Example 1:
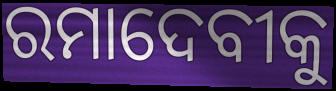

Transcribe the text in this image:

ରମାଦେବୀକୁ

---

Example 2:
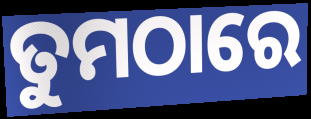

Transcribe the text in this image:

ତୁମଠାରେ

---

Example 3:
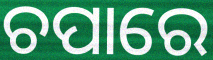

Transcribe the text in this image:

ଚପାରେ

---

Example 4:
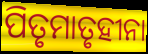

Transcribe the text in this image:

ପିତୃମାତୃହୀନା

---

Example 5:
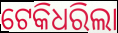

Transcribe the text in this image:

ଟେକିଧରିଲା